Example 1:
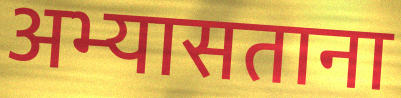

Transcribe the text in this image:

अभ्यासताना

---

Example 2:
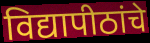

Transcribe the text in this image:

विद्यापीठांचे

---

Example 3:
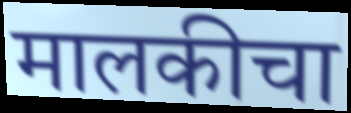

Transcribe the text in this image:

मालकीचा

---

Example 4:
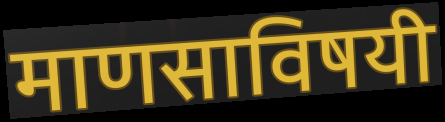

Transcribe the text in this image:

माणसाविषयी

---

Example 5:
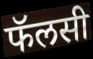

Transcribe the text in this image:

फॅलसी